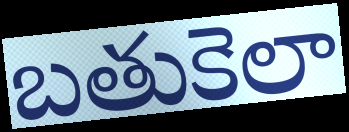
బతుకెలా